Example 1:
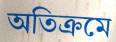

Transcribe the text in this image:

অতিক্ৰমে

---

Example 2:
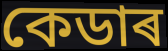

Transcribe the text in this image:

কেডাৰ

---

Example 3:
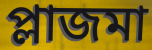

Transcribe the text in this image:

প্লাজমা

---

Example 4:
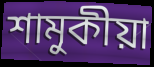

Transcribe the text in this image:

শামুকীয়া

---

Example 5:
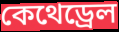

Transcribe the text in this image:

কেথেড্ৰেল